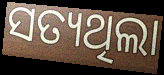
ସତ୍ୟଥିଲା